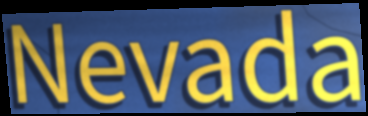
Nevada